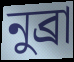
নুব্রা